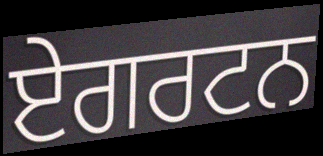
ਏਗਰਟਨ